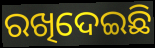
ରଖିଦେଇଛି